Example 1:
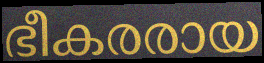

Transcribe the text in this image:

ഭീകരരായ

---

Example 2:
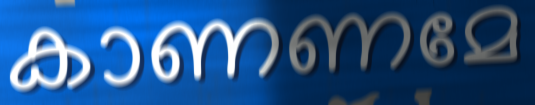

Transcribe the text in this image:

കാണണമേ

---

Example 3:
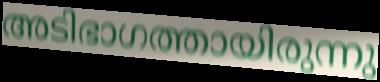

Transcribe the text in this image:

അടിഭാഗത്തായിരുന്നു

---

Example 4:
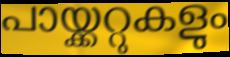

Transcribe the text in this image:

പായ്ക്കറ്റുകളും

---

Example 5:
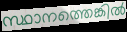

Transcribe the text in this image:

സ്ഥാനത്തെങ്കിൽ